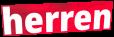
herren